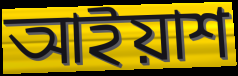
আইয়াশ